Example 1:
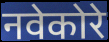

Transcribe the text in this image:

नवेकोरे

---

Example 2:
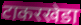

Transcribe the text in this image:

टाकरखेडा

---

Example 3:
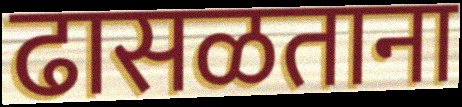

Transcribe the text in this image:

ढासळताना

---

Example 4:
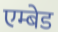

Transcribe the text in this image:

एम्बेड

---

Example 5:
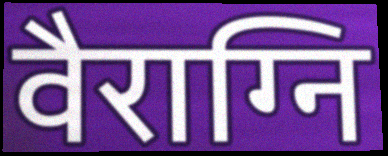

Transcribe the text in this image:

वैराग्नि